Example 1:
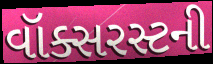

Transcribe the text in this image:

વૉક્સરસ્ટની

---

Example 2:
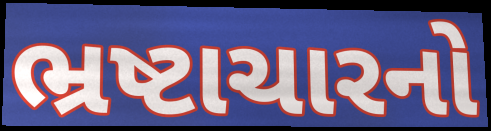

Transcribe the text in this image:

ભ્રષ્ટાચારનો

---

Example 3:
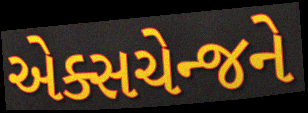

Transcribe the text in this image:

એક્સચેન્જને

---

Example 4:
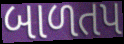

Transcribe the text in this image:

બાળતપ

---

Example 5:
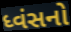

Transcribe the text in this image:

ધ્વંસનો